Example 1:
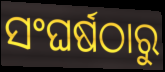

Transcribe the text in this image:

ସଂଘର୍ଷଠାରୁ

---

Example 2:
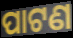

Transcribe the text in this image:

ପାଟଣ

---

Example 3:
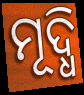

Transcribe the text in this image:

ମୂଦ୍ଧି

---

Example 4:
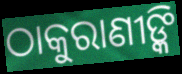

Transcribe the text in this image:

ଠାକୁରାଣୀଙ୍କି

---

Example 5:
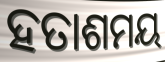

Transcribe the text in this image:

ହତାଶମୟ